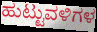
ಹುಟ್ಟುವಳಿಗಳ